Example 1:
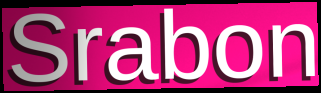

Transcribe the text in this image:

Srabon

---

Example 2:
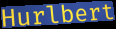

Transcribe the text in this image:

Hurlbert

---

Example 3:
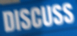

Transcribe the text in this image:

DISCUSS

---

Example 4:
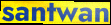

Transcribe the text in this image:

santwan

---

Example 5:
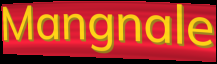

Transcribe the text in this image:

Mangnale